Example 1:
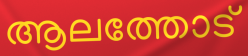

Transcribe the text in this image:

ആലത്തോട്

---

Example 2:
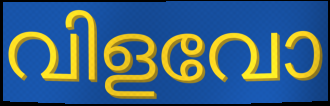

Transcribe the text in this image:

വിളവോ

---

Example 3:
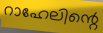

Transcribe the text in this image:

റാഹേലിന്റെ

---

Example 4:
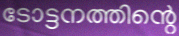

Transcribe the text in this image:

ടോട്ടനത്തിന്റെ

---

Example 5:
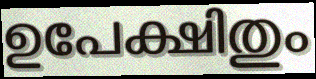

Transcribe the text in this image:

ഉപേക്ഷിതും